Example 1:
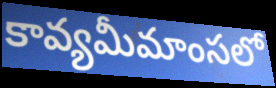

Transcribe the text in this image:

కావ్యమీమాంసలో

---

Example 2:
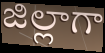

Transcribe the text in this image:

జిల్లాగా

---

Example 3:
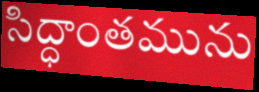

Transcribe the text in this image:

సిద్ధాంతమును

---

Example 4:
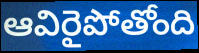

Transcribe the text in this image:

ఆవిరైపోతోంది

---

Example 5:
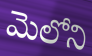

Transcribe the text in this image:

మెలోని